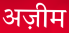
अज़ीम